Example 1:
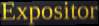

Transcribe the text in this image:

Expositor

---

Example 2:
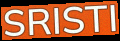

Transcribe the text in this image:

SRISTI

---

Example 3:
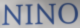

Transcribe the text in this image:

NINO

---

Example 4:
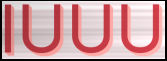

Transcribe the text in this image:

IUUU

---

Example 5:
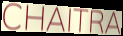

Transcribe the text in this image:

CHAITRA